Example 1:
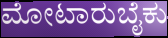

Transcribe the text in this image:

ಮೋಟಾರುಬೈಕು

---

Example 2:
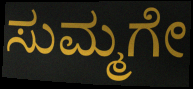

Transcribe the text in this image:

ಸುಮ್ಮಗೇ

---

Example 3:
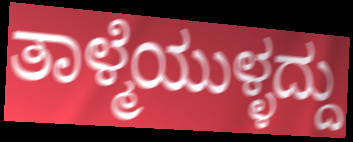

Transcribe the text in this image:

ತಾಳ್ಮೆಯುಳ್ಳದ್ದು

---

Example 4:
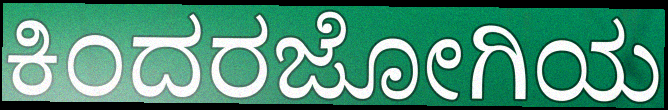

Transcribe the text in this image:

ಕಿಂದರಜೋಗಿಯ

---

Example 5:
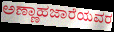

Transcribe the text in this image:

ಅಣ್ಣಾಹಜಾರೆಯವರ